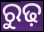
ରୁଢ଼